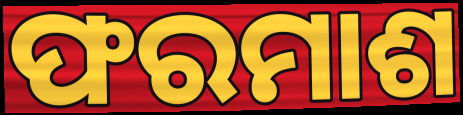
ଫରମାଶ